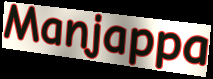
Manjappa